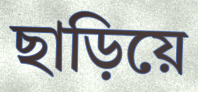
ছাড়িয়ে